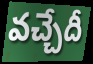
వచ్చేదీ